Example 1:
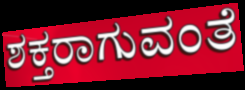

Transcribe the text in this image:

ಶಕ್ತರಾಗುವಂತೆ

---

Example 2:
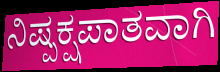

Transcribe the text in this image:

ನಿಷ್ಪಕ್ಷಪಾತವಾಗಿ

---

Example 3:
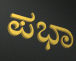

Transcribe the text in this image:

ಪಭಾ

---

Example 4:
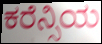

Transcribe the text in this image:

ಕರೆನ್ಸಿಯ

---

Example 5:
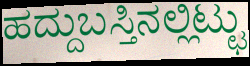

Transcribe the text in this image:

ಹದ್ದುಬಸ್ತಿನಲ್ಲಿಟ್ಟು